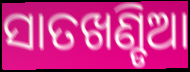
ସାତଖଣ୍ଡିଆ